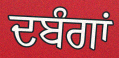
ਦਬੰਗਾਂ